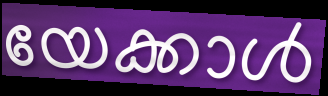
യേക്കാൾ